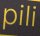
pili